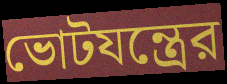
ভোটযন্ত্রের